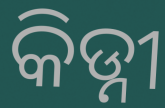
କିଡ୍ନୀ